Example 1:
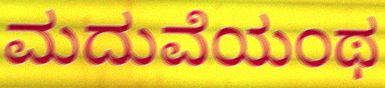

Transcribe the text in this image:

ಮದುವೆಯಂಥ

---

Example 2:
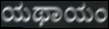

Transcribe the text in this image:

ಯಥಾಯಂ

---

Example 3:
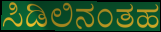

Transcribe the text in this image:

ಸಿಡಿಲಿನಂತಹ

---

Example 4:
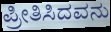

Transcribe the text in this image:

ಪ್ರೀತಿಸಿದವನು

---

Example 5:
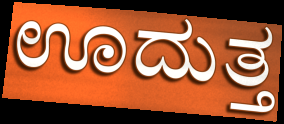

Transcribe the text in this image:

ಊದುತ್ತ